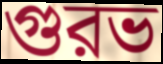
গুরভ